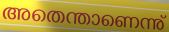
അതെന്താണെന്നു്